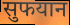
सुफयान